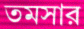
তমসার